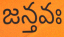
జన్తవః